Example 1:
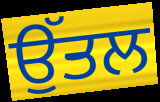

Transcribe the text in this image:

ਉੱਤਲ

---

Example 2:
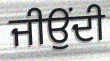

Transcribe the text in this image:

ਜੀਉਂਦੀ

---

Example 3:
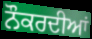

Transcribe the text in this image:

ਨੌਕਰਦੀਆਂ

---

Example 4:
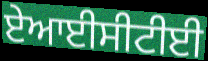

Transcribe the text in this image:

ਏਆਈਸੀਟੀਈ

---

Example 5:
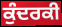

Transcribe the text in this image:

ਕੁੰਦਰਕੀ